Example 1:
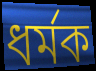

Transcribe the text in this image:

ধৰ্মক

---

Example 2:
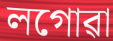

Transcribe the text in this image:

লগোৱা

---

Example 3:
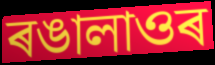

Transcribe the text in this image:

ৰঙালাওৰ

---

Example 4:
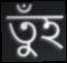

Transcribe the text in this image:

তুঁহ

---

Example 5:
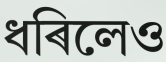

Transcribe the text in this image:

ধৰিলেও